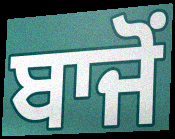
ਬਾਜੋਂ